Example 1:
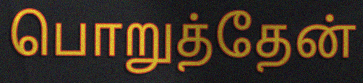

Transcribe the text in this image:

பொறுத்தேன்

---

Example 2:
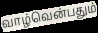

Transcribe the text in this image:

வாழ்வென்பதும்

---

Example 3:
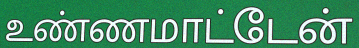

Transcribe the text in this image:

உண்ணமாட்டேன்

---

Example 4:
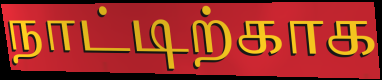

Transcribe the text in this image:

நாட்டிற்காக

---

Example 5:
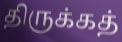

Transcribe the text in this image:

திருக்கத்